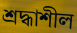
শ্ৰদ্ধাশীল